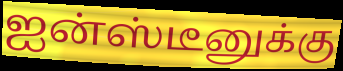
ஐன்ஸ்டீனுக்கு